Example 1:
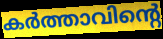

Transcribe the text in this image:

കർത്താവിന്റെ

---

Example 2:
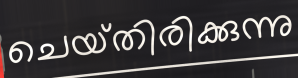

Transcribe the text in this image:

ചെയ്‌തിരിക്കുന്നു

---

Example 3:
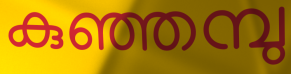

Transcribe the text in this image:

കുഞ്ഞമ്പു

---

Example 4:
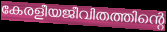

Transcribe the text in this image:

കേരളീയജീവിതത്തിന്റെ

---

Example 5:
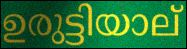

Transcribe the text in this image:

ഉരുട്ടിയാല്